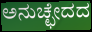
ಅನುಚ್ಛೇದದ